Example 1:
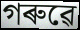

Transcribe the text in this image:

গৰুৱে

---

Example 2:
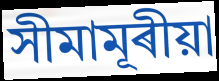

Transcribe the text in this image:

সীমামূৰীয়া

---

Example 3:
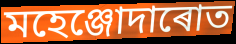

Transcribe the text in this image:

মহেঞ্জোদাৰোত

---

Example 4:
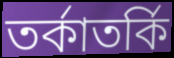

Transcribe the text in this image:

তৰ্কাতৰ্কি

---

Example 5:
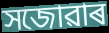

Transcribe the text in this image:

সজোৱাৰ